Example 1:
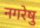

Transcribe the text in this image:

नगरेषु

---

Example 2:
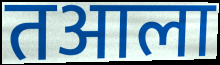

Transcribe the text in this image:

तआला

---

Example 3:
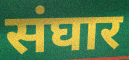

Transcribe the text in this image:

संघार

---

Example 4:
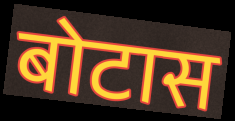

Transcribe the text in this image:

बोटास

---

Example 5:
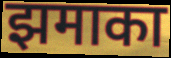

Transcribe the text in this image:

झमाका